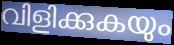
വിളിക്കുകയും